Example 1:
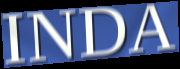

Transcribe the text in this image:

INDA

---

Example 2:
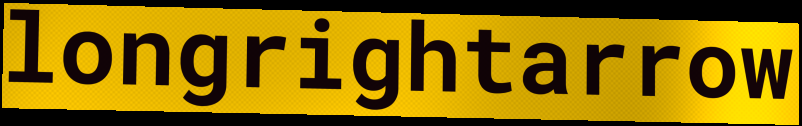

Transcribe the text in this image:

longrightarrow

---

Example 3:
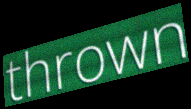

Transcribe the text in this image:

thrown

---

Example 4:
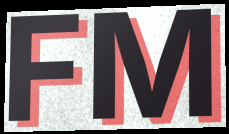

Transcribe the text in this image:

FM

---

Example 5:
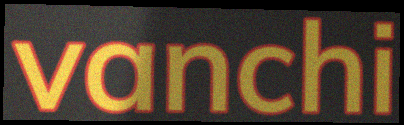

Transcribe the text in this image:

vanchi